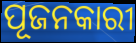
ପୂଜନକାରୀ